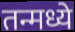
तन्मध्ये